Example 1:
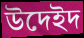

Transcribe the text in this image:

উদেইদ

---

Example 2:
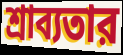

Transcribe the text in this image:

শ্রাব্যতার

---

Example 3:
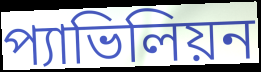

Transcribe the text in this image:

প্যাভিলিয়ন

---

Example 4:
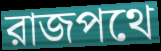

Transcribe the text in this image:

রাজপথে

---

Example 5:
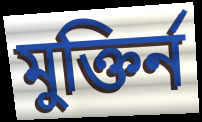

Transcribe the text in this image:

মুক্তির্ন